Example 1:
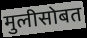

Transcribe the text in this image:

मुलीसोबत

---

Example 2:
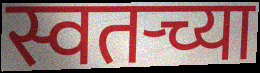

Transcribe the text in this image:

स्वतर्‍च्या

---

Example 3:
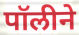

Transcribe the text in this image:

पॉलीने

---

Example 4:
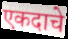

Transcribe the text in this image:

एकदाचे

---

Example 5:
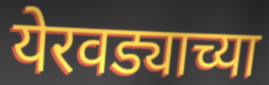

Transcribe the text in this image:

येरवड्याच्या